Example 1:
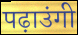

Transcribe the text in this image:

पढ़ाउंगी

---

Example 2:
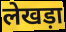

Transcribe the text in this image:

लेखड़ा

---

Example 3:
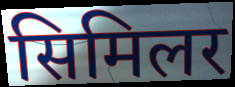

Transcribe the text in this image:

सिमिलर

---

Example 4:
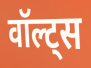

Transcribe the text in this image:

वॉल्ट्स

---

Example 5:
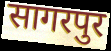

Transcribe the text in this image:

सागरपुर